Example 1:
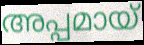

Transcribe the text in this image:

അപ്പമായ്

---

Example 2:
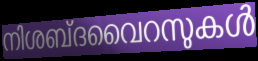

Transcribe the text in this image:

നിശബ്‌ദവൈറസുകൾ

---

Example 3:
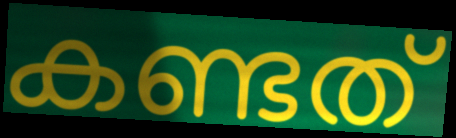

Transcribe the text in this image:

കണ്ടത്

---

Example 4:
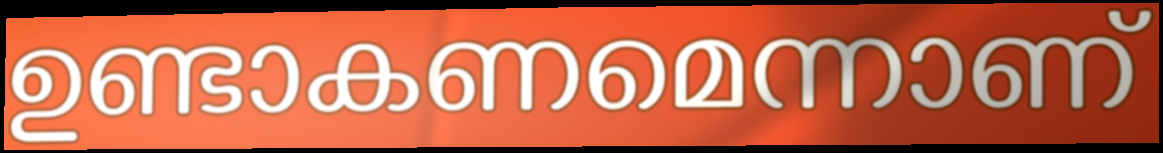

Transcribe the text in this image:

ഉണ്ടാകണമെന്നാണ്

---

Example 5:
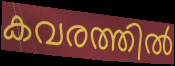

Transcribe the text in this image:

കവരത്തിൽ